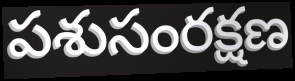
పశుసంరక్షణ